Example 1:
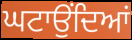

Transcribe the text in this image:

ਘਟਾਉਂਦਿਆਂ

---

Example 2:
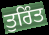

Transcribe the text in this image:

ਤੁਰਿੰਤ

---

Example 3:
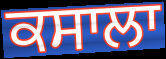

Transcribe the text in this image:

ਕਸਾਲਾ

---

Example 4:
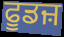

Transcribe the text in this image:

ਫੂਡਜ਼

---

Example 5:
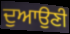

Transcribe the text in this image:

ਦੁਆਉਣੀ